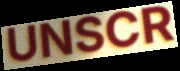
UNSCR